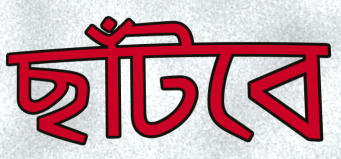
ছাঁটবে